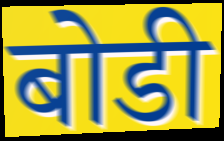
बोडी